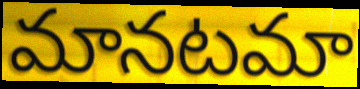
మానటమా